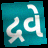
દ્રવે